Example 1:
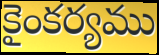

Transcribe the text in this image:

కైంకర్యము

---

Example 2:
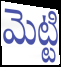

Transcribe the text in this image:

మెట్టి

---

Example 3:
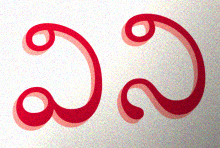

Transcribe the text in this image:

విని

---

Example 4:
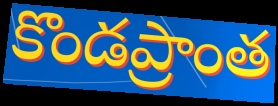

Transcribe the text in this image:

కొండప్రాంత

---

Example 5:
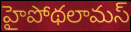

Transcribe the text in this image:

హైపోథలామస్